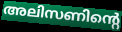
അലിസണിന്റെ